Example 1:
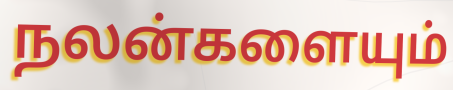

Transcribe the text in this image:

நலன்களையும்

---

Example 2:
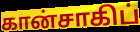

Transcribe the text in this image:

கான்சாகிப்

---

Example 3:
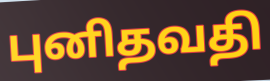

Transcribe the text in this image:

புனிதவதி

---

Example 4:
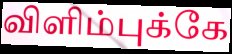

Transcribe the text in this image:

விளிம்புக்கே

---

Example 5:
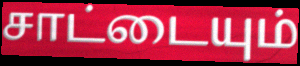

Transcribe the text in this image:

சாட்டையும்